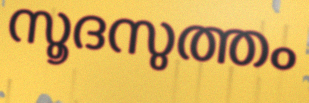
സൂദസുത്തം